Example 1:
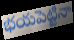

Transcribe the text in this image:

భయపెట్టినా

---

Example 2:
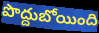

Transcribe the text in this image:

పొద్దుబోయింది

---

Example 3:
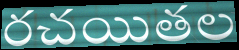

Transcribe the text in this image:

రచయితల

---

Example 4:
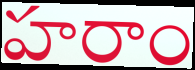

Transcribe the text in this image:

హరాం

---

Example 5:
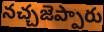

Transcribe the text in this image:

నచ్చజెప్పారు